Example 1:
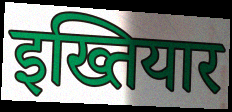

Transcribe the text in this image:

इख्तियार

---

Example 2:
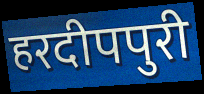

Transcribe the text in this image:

हरदीपपुरी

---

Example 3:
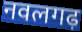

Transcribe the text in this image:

नवलगढ़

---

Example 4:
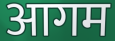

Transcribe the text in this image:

आगम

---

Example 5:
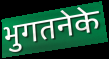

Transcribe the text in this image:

भुगतनेके